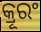
କ୍ରୂରଂ